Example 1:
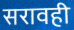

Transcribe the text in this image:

सरावही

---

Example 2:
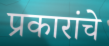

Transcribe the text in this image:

प्रकारांचे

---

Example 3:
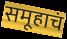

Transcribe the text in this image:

समूहाचं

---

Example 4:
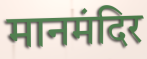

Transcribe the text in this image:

मानमंदिर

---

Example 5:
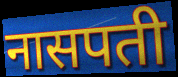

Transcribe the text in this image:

नासपती